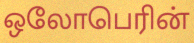
ஒலோபெரின்